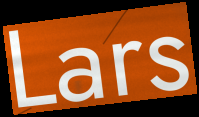
Lars